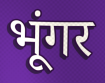
भूंगर